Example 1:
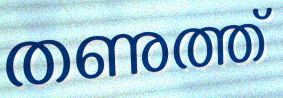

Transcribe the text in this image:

തണുത്ത്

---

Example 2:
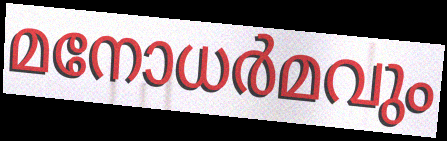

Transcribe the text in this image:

മനോധർമവും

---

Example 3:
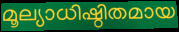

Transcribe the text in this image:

മൂല്യാധിഷ്ഠിതമായ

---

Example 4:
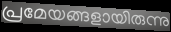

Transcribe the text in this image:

പ്രമേയങ്ങളായിരുന്നു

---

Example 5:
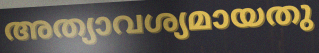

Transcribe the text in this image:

അത്യാവശ്യമായതു